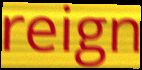
reign